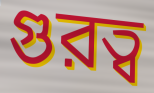
গুরত্ব